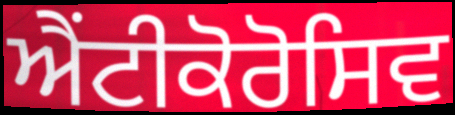
ਐਂਟੀਕੋਰੋਸਿਵ